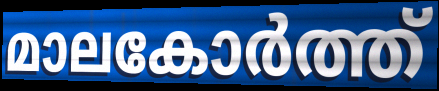
മാലകോർത്ത്